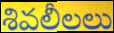
శివలీలలు